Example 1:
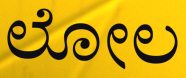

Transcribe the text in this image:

ಲೋಲ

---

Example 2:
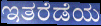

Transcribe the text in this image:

ಇತರೆಡೆಯ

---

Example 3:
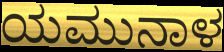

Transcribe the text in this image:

ಯಮುನಾಳ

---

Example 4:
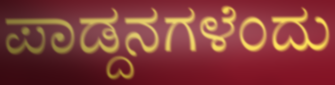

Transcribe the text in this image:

ಪಾಡ್ದನಗಳೆಂದು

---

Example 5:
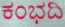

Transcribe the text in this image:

ಕಂಭದಿ